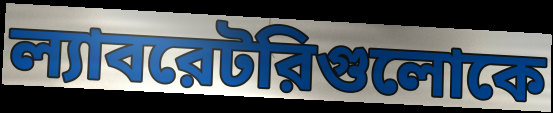
ল্যাবরেটরিগুলোকে